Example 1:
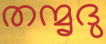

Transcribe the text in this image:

തന്മൃദു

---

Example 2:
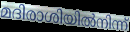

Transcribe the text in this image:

മദിരാശിയിൽനിന്ന്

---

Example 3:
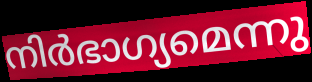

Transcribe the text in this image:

നിർഭാഗ്യമെന്നു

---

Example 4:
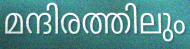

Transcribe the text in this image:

മന്ദിരത്തിലും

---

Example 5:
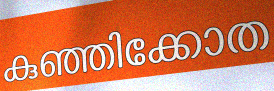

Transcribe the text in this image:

കുഞ്ഞിക്കോത